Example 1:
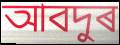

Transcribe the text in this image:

আবদুৰ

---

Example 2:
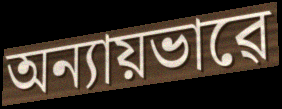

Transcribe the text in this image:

অন্যায়ভাৱে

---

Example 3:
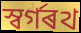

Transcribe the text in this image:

স্বৰ্গৰথ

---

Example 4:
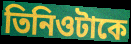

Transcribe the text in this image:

তিনিওটাকে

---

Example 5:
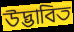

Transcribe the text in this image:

উদ্ভাবিত